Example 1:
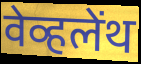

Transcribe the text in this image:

वेव्हलेंथ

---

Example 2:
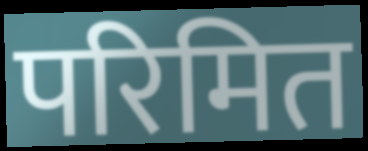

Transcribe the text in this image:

परिमित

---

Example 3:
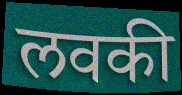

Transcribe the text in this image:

लवकी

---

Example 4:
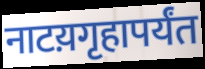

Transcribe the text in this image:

नाटय़गृहापर्यंत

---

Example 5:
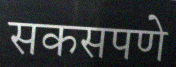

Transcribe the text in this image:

सकसपणे